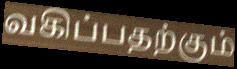
வகிப்பதற்கும்